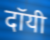
दॉयी